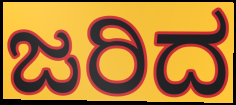
ಜರಿದ